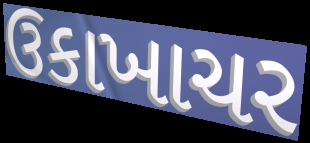
ઉકાખાચર